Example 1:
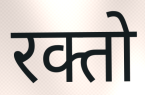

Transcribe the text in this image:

रक्तो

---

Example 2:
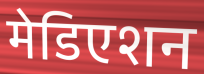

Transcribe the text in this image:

मेडिएशन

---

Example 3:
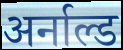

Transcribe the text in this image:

अर्नाल्ड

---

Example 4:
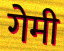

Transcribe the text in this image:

गेमी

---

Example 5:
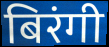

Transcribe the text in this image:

बिरंगी